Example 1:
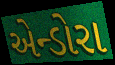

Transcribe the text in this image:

એન્ડોરા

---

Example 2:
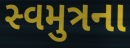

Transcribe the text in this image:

સ્વમુત્રના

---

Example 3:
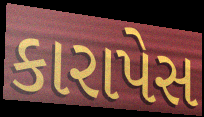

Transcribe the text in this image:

કારાપેસ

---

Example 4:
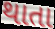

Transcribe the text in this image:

થાતા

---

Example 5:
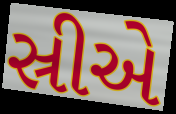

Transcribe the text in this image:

સ્રીએ